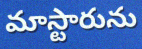
మాస్టారును